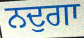
ਨਦੁਗਾ